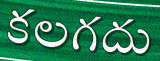
కలగదు